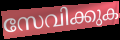
സേവിക്കുക